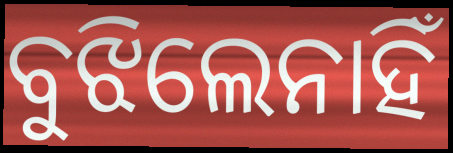
ବୁଝିଲେନାହିଁ